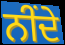
ਨੀਂਦੇ